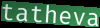
tatheva